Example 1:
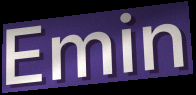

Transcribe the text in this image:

Emin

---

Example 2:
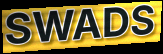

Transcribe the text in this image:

SWADS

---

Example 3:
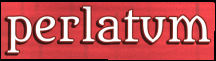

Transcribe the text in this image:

perlatum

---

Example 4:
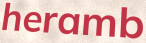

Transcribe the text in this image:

heramb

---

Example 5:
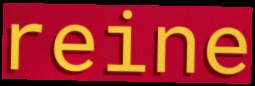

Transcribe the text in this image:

reine